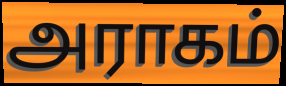
அராகம்